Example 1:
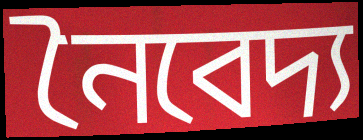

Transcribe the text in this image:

নৈবেদ্য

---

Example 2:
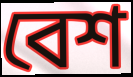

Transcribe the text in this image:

বেশ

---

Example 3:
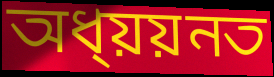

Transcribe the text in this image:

অধ্য়য়নত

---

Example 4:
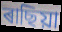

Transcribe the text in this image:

ৰাছিয়া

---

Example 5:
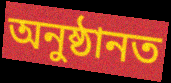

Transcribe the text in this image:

অনুষ্ঠানত